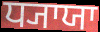
ਧ੍ਯਾਯਾ